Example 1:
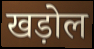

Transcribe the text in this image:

खड़ोल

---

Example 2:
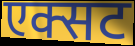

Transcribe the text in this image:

एक्सट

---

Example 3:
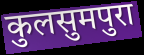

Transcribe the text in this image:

कुलसुमपुरा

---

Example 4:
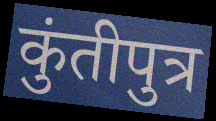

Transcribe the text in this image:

कुंतीपुत्र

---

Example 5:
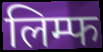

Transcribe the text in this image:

लिम्फ